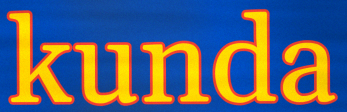
kunda